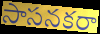
సాసనకరా